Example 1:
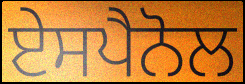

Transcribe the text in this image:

ਏਸਪੈਨੋਲ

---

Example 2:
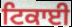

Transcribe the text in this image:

ਟਿਕਾਈ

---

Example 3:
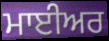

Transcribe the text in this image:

ਮਾਈਅਰ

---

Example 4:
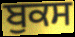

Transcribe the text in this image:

ਬੁਕਸ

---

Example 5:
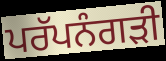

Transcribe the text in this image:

ਪਰੱਪਨੰਗੜੀ